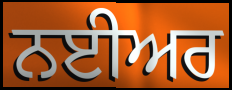
ਨਈਅਰ